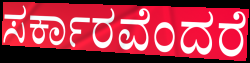
ಸರ್ಕಾರವೆಂದರೆ